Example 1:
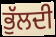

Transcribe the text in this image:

ਭੁੱਲਦੀ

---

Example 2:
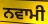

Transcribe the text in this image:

ਨਵਾਮੀ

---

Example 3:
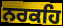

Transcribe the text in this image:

ਨਰਕਹਿ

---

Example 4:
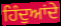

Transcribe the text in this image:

ਹਿੰਦੁਆਂਦੇ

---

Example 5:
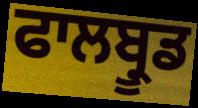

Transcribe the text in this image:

ਫਾਲਬ੍ਰੂਡ